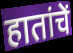
हातांचें